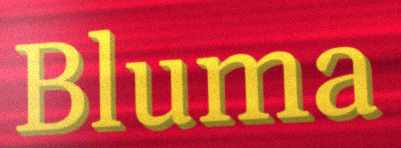
Bluma